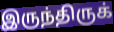
இருந்திருக்